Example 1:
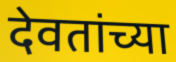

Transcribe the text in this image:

देवतांच्या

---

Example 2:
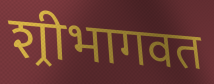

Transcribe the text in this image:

श्रीभागवत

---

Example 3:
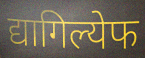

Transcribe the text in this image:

द्यागिल्येफ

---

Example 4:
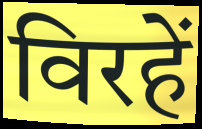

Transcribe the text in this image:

विरहें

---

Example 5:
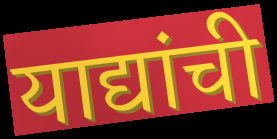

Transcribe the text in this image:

याद्यांची